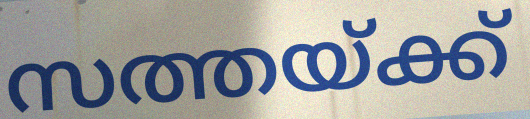
സത്തയ്ക്ക്